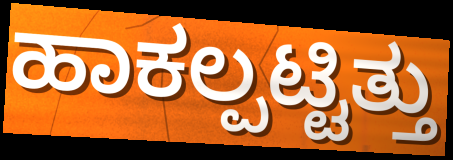
ಹಾಕಲ್ಪಟ್ಟಿತ್ತು